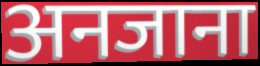
अनजाना